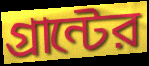
গ্রান্টের